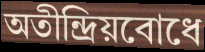
অতীন্দ্রিয়বোধে